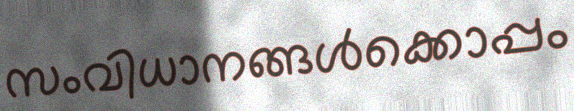
സംവിധാനങ്ങൾക്കൊപ്പം